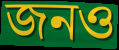
জনও